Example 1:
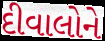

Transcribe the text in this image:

દીવાલોને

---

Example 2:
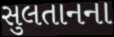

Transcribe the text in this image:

સુલતાનના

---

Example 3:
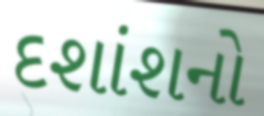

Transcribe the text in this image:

દશાંશનો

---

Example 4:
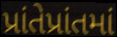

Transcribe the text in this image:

પ્રાંતેપ્રાંતમાં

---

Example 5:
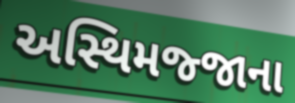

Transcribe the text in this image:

અસ્થિમજ્જાના